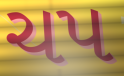
ચપ